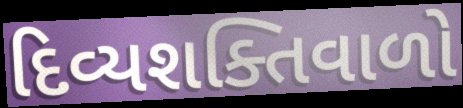
દિવ્યશક્તિવાળો